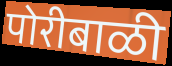
पोरीबाळी